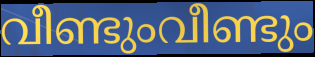
വീണ്ടുംവീണ്ടും